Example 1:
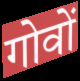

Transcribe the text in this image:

गोवों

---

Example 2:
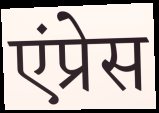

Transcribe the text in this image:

एंप्रेस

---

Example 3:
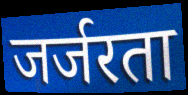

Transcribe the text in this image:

जर्जरता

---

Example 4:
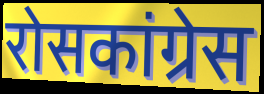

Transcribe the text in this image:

रोसकांग्रेस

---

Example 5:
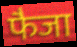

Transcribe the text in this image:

फैजा